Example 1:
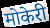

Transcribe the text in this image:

मोकेरी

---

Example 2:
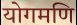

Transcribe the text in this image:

योगमणि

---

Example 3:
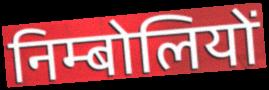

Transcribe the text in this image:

निम्बोलियों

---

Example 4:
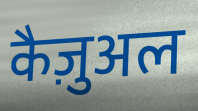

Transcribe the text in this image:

कैज़ुअल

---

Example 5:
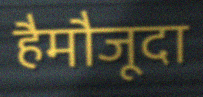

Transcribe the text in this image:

हैमौजूदा